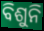
ବିଶୁନି